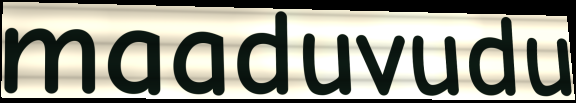
maaduvudu